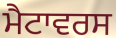
ਮੈਟਾਵਰਸ